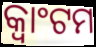
କ୍ୱାଂଟମ